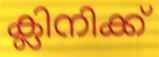
ക്ലിനിക്ക്